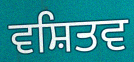
ਵਸ਼ਿਤਵ